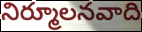
నిర్మూలనవాది